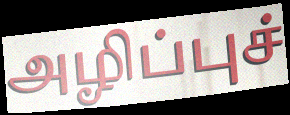
அழிப்புச்